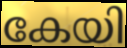
കേയി